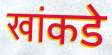
खांकडे